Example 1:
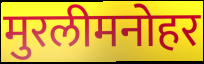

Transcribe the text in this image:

मुरलीमनोहर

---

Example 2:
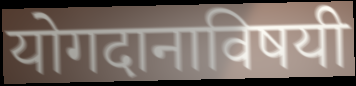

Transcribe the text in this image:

योगदानाविषयी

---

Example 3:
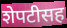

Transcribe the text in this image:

शेपटीसह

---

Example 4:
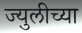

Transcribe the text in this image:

ज्युलीच्या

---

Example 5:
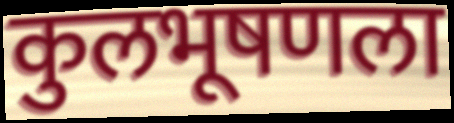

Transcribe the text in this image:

कुलभूषणला